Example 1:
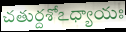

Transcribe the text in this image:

చతుర్దశోఽధ్యాయః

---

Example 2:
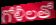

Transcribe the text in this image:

గోళీలతో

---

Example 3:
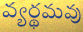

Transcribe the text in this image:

వ్యర్థమవు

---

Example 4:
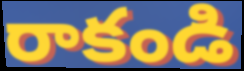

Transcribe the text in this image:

రాకండి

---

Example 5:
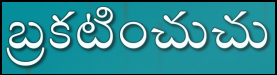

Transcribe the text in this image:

బ్రకటించుచు